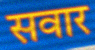
सवार